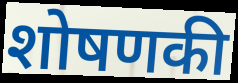
शोषणकी